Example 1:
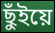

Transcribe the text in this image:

ছুঁইয়ে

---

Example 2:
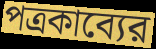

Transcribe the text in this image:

পত্রকাব্যের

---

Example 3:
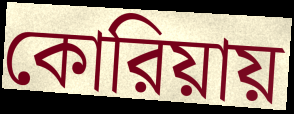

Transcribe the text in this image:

কোরিয়ায়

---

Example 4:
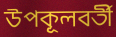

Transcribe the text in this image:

উপকূলবর্তী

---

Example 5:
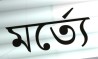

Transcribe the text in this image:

মর্ত্যে